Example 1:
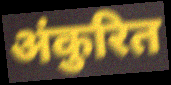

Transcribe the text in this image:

अंकुरित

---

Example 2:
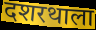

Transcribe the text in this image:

दशरथाला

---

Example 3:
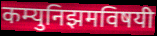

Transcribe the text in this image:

कम्युनिझमविषयी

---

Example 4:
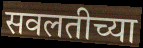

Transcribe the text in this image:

सवलतीच्या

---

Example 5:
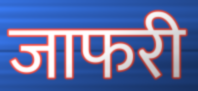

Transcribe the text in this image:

जाफरी